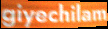
giyechilam